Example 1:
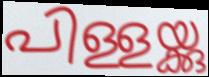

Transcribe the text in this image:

പിള്ളയ്ക്കു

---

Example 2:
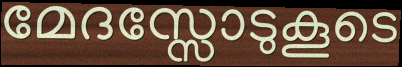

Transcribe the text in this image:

മേദസ്സോടുകൂടെ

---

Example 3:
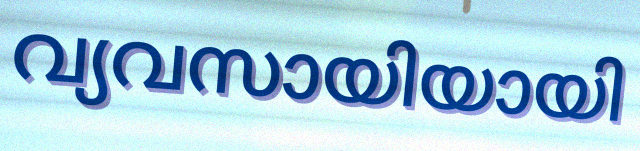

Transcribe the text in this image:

വ്യവസായിയായി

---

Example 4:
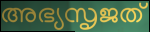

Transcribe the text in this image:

അഭ്യസൃജത്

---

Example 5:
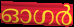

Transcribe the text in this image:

ഓഗർ